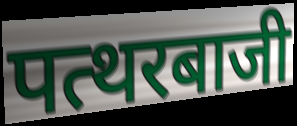
पत्थरबाजी